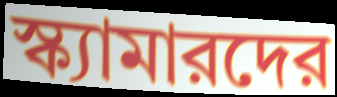
স্ক্যামারদের